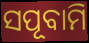
ସପୂବାମି